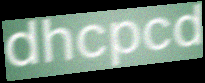
dhcpcd